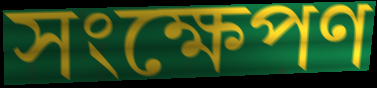
সংক্ষেপণ